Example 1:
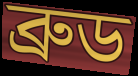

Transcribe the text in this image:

ব্রুড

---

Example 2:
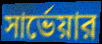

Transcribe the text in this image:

সার্ভেয়ার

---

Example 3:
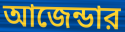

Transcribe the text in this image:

আজেন্ডার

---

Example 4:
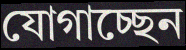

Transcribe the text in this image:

যোগাচ্ছেন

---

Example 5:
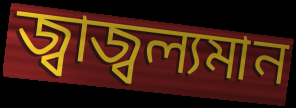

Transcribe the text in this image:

জ্বাজ্বল্যমান